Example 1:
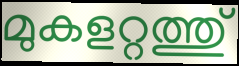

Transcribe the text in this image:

മുകളറ്റത്തു്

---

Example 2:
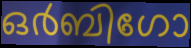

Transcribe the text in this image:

ഒർബിഗോ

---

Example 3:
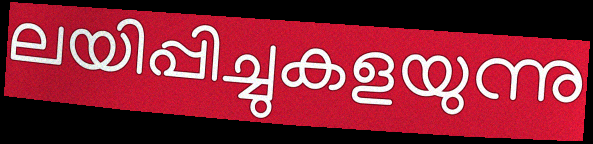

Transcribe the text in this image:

ലയിപ്പിച്ചുകളയുന്നു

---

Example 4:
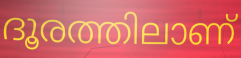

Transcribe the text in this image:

ദൂരത്തിലാണ്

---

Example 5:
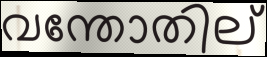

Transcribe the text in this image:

വന്തോതില്